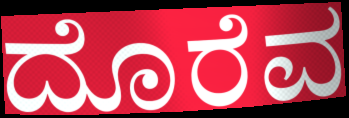
ದೊರೆವ